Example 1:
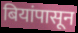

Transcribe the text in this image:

बियांपासून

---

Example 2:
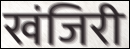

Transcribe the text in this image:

खंजिरी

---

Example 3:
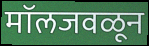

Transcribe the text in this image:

मॉलजवळून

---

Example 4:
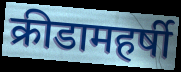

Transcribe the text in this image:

क्रीडामहर्षी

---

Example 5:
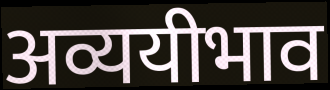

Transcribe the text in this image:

अव्ययीभाव